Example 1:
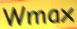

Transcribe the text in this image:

Wmax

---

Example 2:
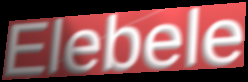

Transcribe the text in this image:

Elebele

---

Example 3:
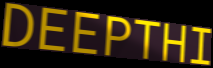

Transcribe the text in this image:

DEEPTHI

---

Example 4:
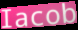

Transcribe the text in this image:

Iacob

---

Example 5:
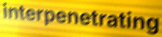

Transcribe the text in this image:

interpenetrating